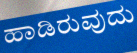
ಹಾಡಿರುವುದು